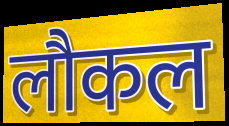
लौकल